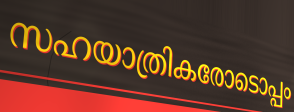
സഹയാത്രികരോടൊപ്പം